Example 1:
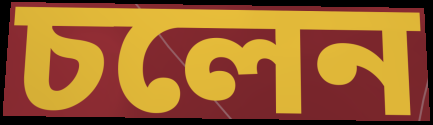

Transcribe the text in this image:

চলেন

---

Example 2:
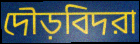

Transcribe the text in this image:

দৌড়বিদরা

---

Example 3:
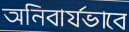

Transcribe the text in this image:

অনিবার্যভাবে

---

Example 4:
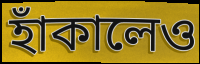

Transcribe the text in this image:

হাঁকালেও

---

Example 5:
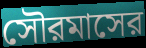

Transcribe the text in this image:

সৌরমাসের